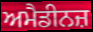
ਅਮੈਡੀਨਜ਼